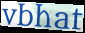
vbhat